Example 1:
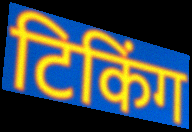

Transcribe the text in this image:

टिकिंग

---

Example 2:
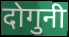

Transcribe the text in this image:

दोगुनी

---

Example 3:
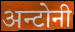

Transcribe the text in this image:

अन्टोनी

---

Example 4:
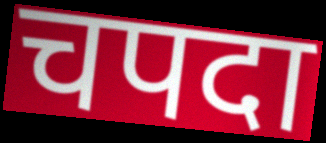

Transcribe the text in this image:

चपदा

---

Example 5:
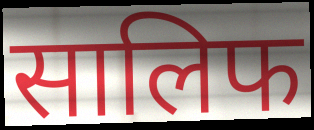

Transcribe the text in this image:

सालिफ